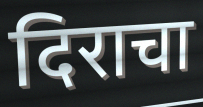
दिराचा